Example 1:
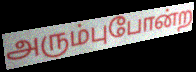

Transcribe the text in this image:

அரும்புபோன்ற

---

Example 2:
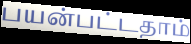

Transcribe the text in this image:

பயன்பட்டதாம்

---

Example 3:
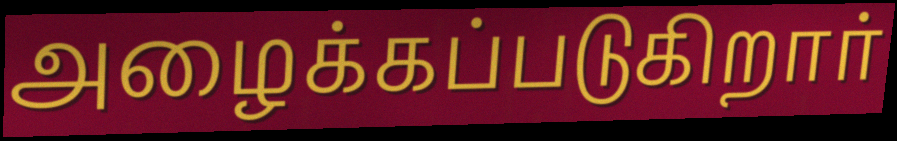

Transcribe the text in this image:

அழைக்கப்படுகிறார்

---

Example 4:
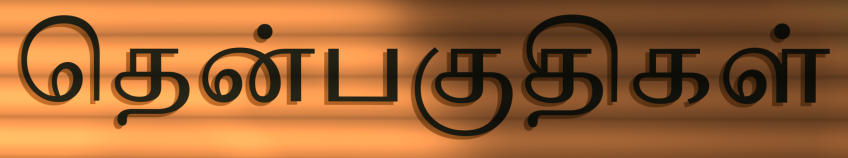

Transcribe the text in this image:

தென்பகுதிகள்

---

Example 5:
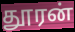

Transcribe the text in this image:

தூரன்